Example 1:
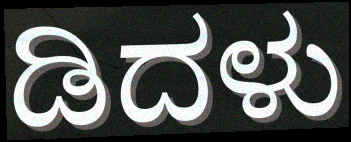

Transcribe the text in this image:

ಡಿದಳು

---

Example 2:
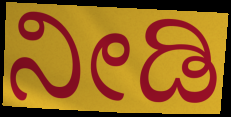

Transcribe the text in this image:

ನೀಡಿ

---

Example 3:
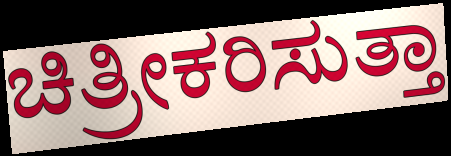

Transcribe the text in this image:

ಚಿತ್ರೀಕರಿಸುತ್ತಾ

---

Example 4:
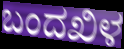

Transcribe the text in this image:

ಬಂದಖಿಳ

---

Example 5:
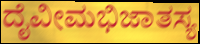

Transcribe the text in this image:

ದೈವೀಮಭಿಜಾತಸ್ಯ